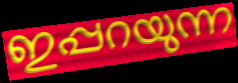
ഇപ്പറയുന്ന